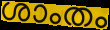
ശാംതം